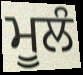
ਮੂਲੰ